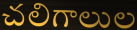
చలిగాలుల